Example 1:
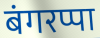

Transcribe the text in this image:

बंगरप्पा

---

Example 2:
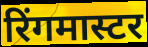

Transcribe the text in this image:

रिंगमास्टर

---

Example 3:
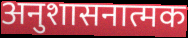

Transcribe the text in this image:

अनुशासनात्मक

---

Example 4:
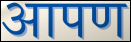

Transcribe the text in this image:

आपण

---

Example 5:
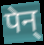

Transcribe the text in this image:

पेन्